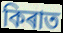
কিৰাত